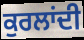
ਕੁਰਲਾਂਦੀ